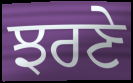
ਝਰਣੇ